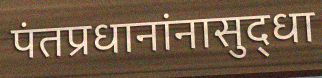
पंतप्रधानांनासुद्धा